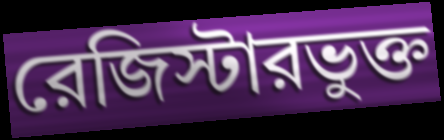
রেজিস্টারভুক্ত